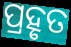
ପ୍ରହୃତ